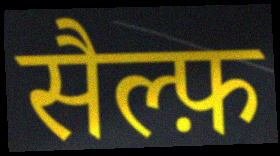
सैल्फ़